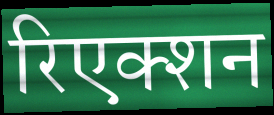
रिएक्शन